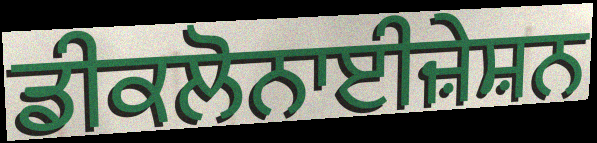
ਡੀਕਲੋਨਾਈਜ਼ੇਸ਼ਨ